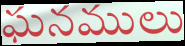
ఘనములు